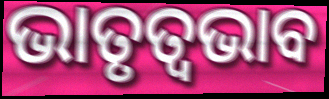
ଭାତୃତ୍ବଭାବ